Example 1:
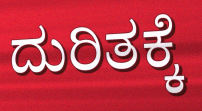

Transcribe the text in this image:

ದುರಿತಕ್ಕೆ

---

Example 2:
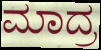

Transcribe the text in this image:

ಮಾದ್ರ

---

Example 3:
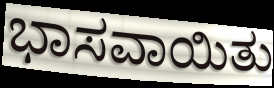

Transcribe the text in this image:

ಭಾಸವಾಯಿತು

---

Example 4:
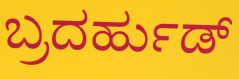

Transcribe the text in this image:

ಬ್ರದರ್ಹುಡ್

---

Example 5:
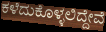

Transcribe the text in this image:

ಕಳೆದುಕೊಳ್ಳಲಿದ್ದೇವೆ